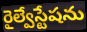
రైల్వేస్టేషను